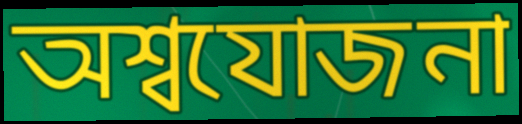
অশ্বযোজনা